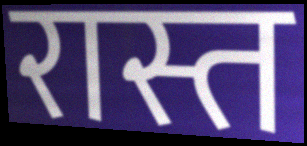
रास्त